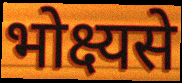
भोक्ष्यसे